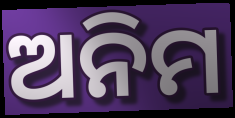
ଅନିମ